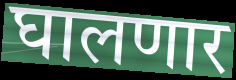
घालणार